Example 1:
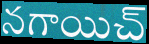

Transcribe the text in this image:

నగాయిచ్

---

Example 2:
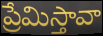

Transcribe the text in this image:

ప్రేమిస్తావా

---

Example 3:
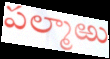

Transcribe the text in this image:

పల్మాఱు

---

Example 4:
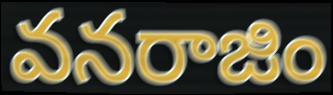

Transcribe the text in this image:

వనరాజిం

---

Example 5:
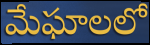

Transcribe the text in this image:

మేఘాలలో